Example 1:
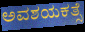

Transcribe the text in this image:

ಅವಶಯಕತ್ಸೆ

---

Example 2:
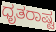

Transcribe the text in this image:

ಧೃತರಾಷ್ಟ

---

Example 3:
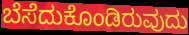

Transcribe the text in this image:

ಬೆಸೆದುಕೊಂಡಿರುವುದು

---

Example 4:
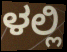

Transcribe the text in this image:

ಳಲ್ಲಿ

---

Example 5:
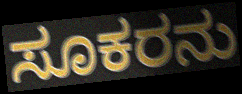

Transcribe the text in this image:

ಸೂಕರನು